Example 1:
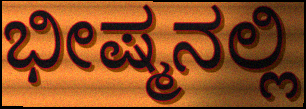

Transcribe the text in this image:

ಭೀಷ್ಮನಲ್ಲಿ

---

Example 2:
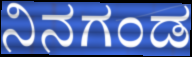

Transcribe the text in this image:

ನಿನಗಂಡ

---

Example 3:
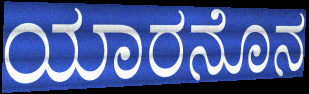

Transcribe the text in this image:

ಯಾರನೊನ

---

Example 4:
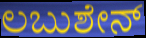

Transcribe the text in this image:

ಲಬುಶೇನ್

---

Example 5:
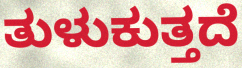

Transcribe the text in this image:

ತುಳುಕುತ್ತದೆ